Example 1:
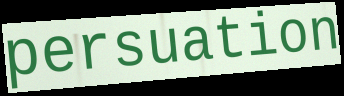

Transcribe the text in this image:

persuation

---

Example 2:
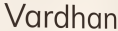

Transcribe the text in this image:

Vardhan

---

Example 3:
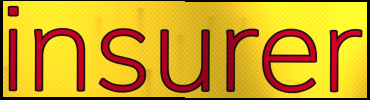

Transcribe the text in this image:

insurer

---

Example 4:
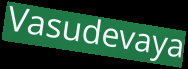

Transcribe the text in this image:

Vasudevaya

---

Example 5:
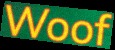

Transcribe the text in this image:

Woof